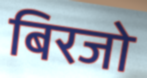
बिरजो